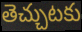
తెచ్చుటకు